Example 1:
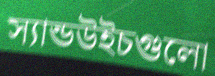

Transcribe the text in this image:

স্যান্ডউইচগুলো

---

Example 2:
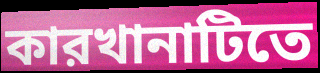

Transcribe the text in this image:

কারখানাটিতে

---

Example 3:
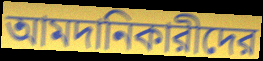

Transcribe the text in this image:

আমদানিকারীদের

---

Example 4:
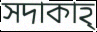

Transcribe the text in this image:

সদাকাহ্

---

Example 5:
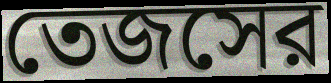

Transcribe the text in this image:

তেজসের